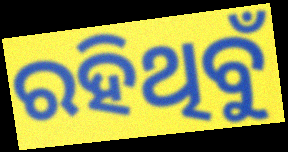
ରହିଥିବୁଁ